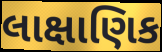
લાક્ષાણિક